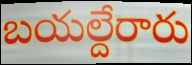
బయల్దేరారు